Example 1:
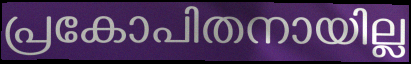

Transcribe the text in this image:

പ്രകോപിതനായില്ല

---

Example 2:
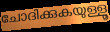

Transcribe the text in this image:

ചോദിക്കുകയുള്ളൂ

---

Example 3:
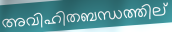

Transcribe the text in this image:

അവിഹിതബന്ധത്തില്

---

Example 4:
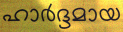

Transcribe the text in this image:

ഹാർദ്ദമായ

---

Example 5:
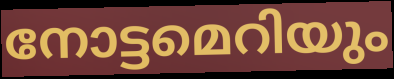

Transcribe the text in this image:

നോട്ടമെറിയും